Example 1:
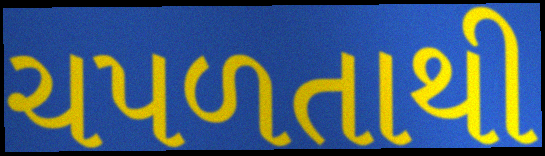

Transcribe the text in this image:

ચપળતાથી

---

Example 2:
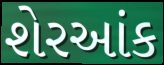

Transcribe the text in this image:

શેરઆંક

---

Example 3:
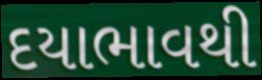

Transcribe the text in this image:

દયાભાવથી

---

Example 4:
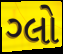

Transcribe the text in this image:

ગ્લો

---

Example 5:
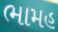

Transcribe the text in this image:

ભામહ